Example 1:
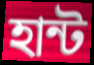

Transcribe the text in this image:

হান্ট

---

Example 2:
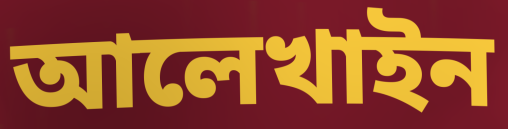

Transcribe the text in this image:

আলেখাইন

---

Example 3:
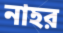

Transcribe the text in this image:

নাহর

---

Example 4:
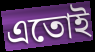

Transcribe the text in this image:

এতোই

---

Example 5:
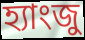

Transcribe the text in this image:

হ্যাংজু